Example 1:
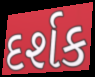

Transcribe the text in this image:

દર્શક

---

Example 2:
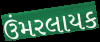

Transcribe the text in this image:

ઉંમરલાયક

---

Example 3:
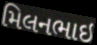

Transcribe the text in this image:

મિલનભાઇ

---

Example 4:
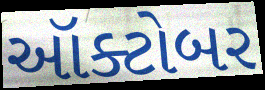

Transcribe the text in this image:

ઑક્ટોબર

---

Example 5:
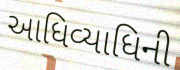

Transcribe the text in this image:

આધિવ્યાધિની